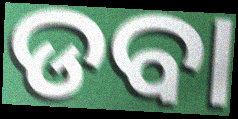
ଡବା